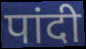
पांदी